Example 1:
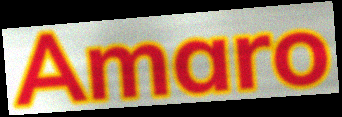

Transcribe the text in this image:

Amaro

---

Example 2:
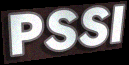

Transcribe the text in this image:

PSSI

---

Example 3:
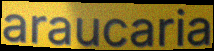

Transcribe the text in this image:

araucaria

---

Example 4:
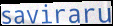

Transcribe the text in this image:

saviraru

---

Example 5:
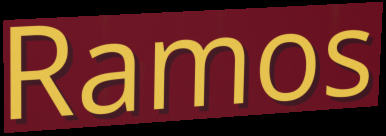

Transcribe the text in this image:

Ramos